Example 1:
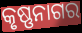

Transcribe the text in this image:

କୃଷ୍ଣନାଗର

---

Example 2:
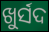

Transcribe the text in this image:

ଖୁର୍ସଦ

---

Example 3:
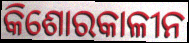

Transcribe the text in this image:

କିଶୋରକାଳୀନ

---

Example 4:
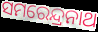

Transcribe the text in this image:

ସମରେନ୍ଦ୍ରନାଥ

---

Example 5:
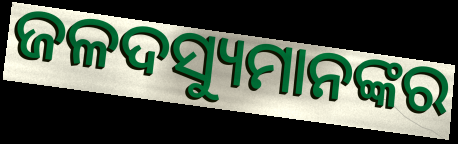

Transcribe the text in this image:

ଜଳଦସ୍ୟୁମାନଙ୍କର